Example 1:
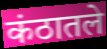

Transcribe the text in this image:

कंठातले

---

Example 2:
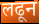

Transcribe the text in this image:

लढून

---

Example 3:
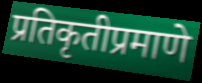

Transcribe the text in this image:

प्रतिकृतीप्रमाणे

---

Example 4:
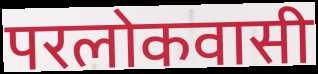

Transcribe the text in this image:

परलोकवासी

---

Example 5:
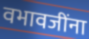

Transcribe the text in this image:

वभावजींना